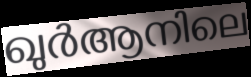
ഖുർആനിലെ